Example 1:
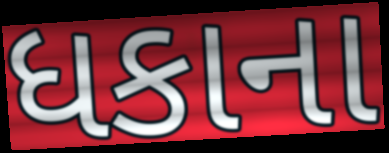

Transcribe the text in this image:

ધકાના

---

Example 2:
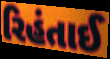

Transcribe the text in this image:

રિહંતાઈ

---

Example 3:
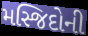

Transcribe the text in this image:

મસ્જિદોની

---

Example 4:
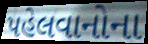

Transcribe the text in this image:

પહેલવાનોના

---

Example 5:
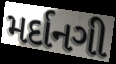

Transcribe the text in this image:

મર્દાનગી